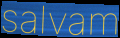
salvam